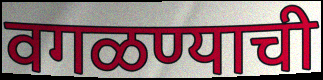
वगळण्याची